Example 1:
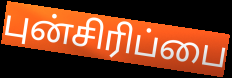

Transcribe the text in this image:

புன்சிரிப்பை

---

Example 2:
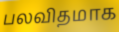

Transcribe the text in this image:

பலவிதமாக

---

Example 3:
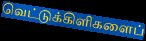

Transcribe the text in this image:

வெட்டுக்கிளிகளைப்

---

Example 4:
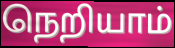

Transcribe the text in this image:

நெறியாம்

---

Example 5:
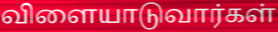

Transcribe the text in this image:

விளையாடுவார்கள்